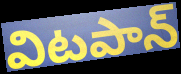
విటపాన్